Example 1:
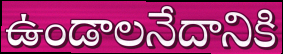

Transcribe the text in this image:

ఉండాలనేదానికి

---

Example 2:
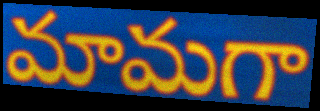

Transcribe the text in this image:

మామగా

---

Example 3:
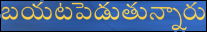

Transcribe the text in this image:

బయటపెడుతున్నారు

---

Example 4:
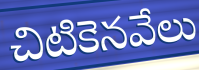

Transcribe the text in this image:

చిటికెనవేలు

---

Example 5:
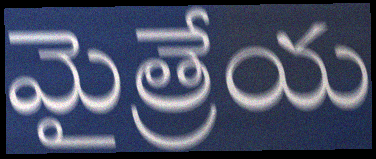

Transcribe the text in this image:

మైత్రేయ